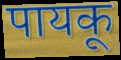
पायकू